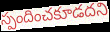
స్పందించకూడదని